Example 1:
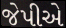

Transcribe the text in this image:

જેપીએ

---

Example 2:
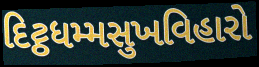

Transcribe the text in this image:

દિટ્ઠધમ્મસુખવિહારો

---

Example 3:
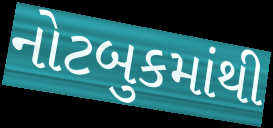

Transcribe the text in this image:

નોટબુકમાંથી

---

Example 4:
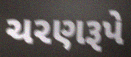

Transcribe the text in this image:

ચરણરૂપે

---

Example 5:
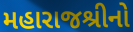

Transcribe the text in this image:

મહારાજશ્રીનો